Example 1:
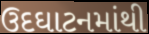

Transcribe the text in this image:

ઉદઘાટનમાંથી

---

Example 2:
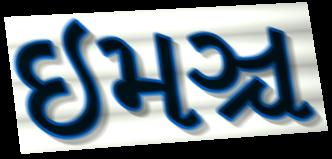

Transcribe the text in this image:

ઇમઞ્ચ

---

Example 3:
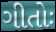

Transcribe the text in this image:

ગીતોઃ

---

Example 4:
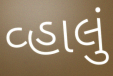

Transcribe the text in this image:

વ્હાલું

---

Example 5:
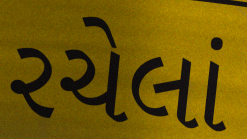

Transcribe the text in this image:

રચેલાં